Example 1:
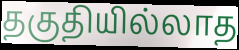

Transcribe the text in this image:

தகுதியில்லாத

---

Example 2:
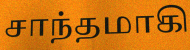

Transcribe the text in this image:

சாந்தமாகி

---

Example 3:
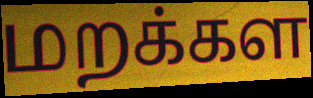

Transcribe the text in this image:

மறக்கள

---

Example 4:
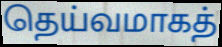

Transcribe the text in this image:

தெய்வமாகத்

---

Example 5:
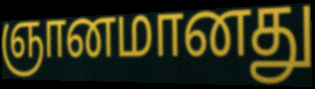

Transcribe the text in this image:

ஞானமானது